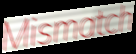
Mismatch